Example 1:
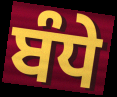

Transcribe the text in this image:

ਬੰਧੇ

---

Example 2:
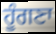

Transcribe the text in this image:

ਹੂੰਗਣਾ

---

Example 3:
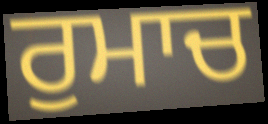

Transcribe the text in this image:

ਰੁਮਾਚ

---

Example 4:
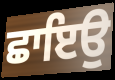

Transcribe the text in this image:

ਛਾਇਉ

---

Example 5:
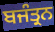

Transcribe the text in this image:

ਬਜੰਤ੍ਰਨ